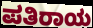
ಪತಿರಾಯ